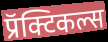
प्रॅक्टिकल्स